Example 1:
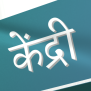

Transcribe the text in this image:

केंद्री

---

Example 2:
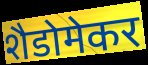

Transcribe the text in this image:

शैडोमेकर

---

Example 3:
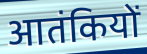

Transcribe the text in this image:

आतंकियों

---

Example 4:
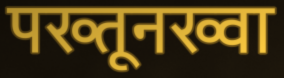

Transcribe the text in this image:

पख्तूनख्वा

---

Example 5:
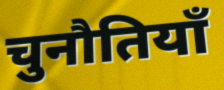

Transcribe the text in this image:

चुनौतियॉं